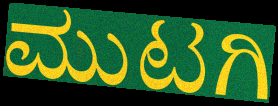
ಮುಟಗಿ